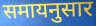
समायनुसार